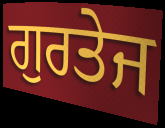
ਗੁਰਤੇਜ